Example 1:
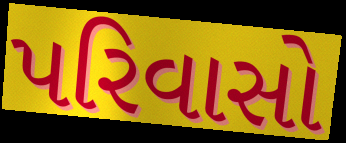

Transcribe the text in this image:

પરિવાસો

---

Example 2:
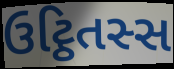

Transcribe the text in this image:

ઉટ્ઠિતસ્સ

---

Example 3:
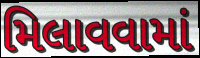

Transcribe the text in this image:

મિલાવવામાં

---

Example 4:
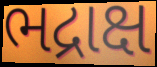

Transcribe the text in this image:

ભદ્રાક્ષ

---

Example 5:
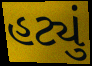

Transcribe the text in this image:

હટ્યું